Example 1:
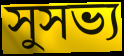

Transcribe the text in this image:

সুসভ্য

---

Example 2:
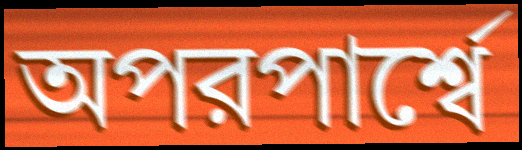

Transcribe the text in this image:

অপরপার্শ্বে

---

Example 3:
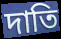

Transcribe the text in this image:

দাতি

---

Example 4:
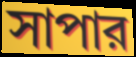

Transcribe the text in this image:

সাপার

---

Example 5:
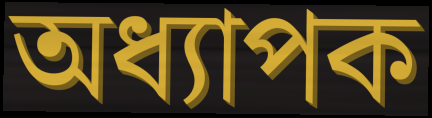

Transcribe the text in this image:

অধ্যাপক